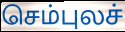
செம்புலச்